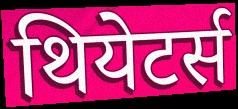
थियेटर्स